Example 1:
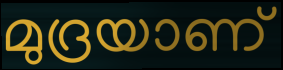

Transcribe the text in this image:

മുദ്രയാണ്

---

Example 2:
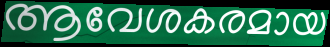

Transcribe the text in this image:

ആവേശകരമായ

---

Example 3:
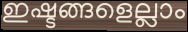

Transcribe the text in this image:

ഇഷ്ടങ്ങളെല്ലാം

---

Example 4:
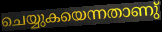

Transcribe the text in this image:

ചെയ്യുകയെന്നതാണു്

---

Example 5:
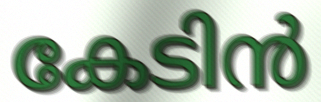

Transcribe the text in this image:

കേടിൻ